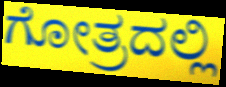
ಗೋತ್ರದಲ್ಲಿ